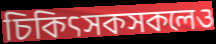
চিকিৎসকসকলেও